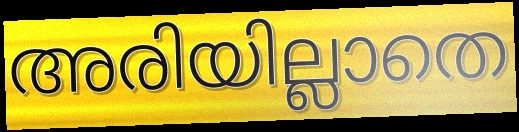
അരിയില്ലാതെ